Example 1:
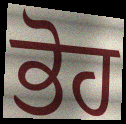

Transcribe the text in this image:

ਭੋਹ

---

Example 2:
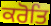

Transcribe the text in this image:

ਕਰੋਤਿ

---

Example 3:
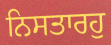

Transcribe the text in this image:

ਨਿਸਤਾਰਹੁ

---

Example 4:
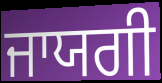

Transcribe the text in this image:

ਜਾਯਗੀ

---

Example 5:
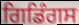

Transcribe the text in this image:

ਗਿਡਿੰਗਸ